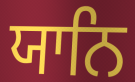
ਯਾਨਿ